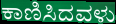
ಕಾಣಿಸಿದವಳು